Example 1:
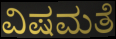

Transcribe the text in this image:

ವಿಷಮತೆ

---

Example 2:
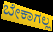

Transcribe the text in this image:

ಬೇಕಾಗಲ್ಲ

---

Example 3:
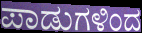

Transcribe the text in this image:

ಪಾಡುಗಳಿಂದ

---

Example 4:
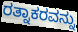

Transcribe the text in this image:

ರತ್ನಾಕರವನ್ನು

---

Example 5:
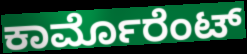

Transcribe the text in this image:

ಕಾರ್ಮೊರೆಂಟ್